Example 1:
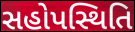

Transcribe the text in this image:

સહોપસ્થિતિ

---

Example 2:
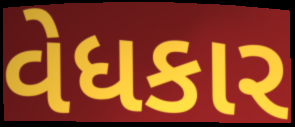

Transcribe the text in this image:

વેધકાર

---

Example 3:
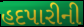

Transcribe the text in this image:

હદપારીની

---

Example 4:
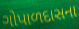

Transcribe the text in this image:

ગોપાળદાસના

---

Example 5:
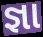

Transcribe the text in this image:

જ્ઞા